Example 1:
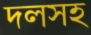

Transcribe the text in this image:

দলসহ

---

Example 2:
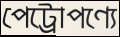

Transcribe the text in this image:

পেট্রোপণ্যে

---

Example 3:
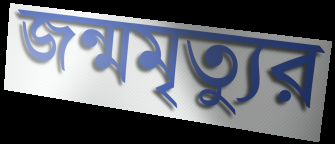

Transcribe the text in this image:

জন্মমৃত্যুর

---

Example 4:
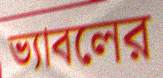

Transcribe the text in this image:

ভ্যাবলের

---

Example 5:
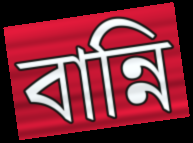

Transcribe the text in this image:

বান্নি